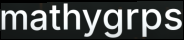
mathygrps